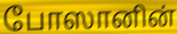
போஸானின்